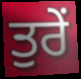
ਤੁਰੇਂ